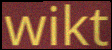
wikt